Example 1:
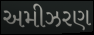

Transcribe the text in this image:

અમીઝરણ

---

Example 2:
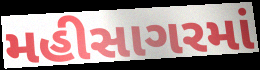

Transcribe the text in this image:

મહીસાગરમાં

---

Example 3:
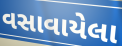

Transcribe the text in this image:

વસાવાયેલા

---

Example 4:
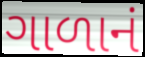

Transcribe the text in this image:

ગાળાનં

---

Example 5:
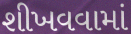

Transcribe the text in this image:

શીખવવામાં